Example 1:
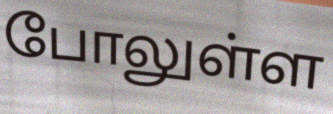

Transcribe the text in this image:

போலுள்ள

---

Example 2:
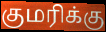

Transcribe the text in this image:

குமரிக்கு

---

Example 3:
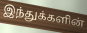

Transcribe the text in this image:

இந்துக்களின்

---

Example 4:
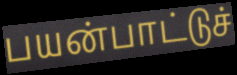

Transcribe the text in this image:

பயன்பாட்டுச்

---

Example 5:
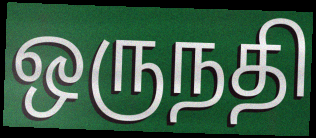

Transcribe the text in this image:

ஒருநதி